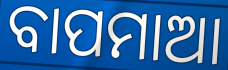
ବାପମାଆ